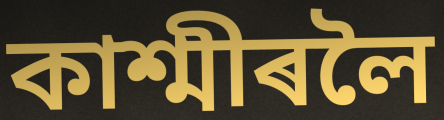
কাশ্মীৰলৈ